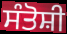
ਸੰਤੋਸ਼ੀ